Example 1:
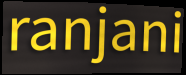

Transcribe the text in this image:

ranjani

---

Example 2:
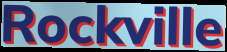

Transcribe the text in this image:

Rockville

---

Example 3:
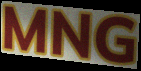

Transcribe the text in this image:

MNG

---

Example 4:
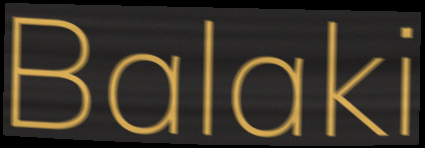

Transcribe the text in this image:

Balaki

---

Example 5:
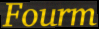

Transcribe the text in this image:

Fourm